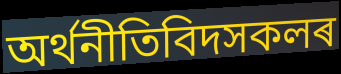
অৰ্থনীতিবিদসকলৰ